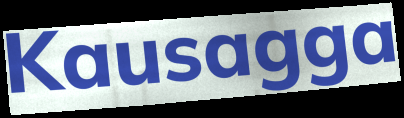
Kausagga